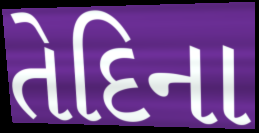
તેદિના